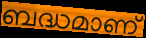
ബദ്ധമാണ്